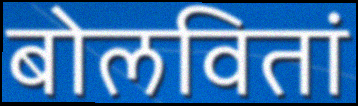
बोलवितां